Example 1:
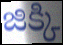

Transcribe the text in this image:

జిక్కి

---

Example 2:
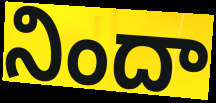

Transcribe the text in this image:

నిందా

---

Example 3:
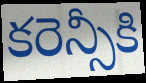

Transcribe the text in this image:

కరెన్సీకి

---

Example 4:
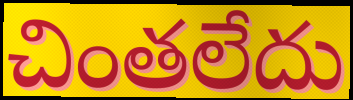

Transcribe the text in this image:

చింతలేదు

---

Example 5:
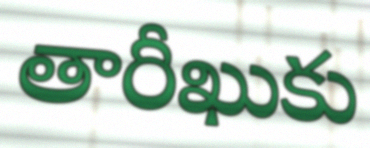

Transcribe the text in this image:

తారీఖుకు